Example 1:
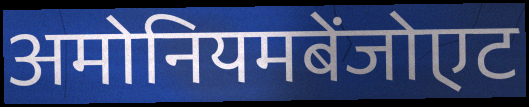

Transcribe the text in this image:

अमोनियमबेंजोएट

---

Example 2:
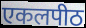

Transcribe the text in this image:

एकलपीठ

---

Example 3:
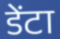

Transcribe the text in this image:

डेंटा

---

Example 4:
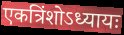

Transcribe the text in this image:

एकत्रिंशोऽध्यायः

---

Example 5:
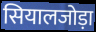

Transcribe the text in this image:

सियालजोड़ा